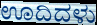
ಊದಿದಳು